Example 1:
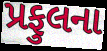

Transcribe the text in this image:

પ્રફુલના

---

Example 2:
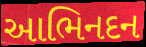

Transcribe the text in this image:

આભિનદન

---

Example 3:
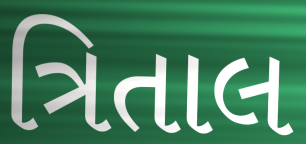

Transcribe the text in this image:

ત્રિતાલ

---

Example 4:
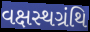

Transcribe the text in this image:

વક્ષસ્થગ્રંથિ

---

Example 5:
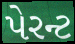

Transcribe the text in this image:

પેરન્ટ